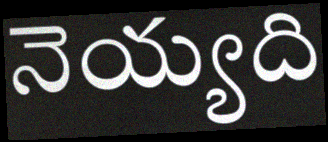
నెయ్యది